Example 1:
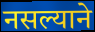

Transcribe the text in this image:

नसल्याने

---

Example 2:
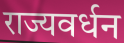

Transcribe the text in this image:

राज्‍यवर्धन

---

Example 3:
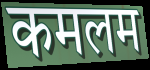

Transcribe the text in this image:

कमलम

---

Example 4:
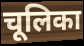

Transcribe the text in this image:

चूलिका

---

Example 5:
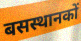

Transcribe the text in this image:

बसस्थानकों